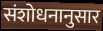
संशोधनानुसार